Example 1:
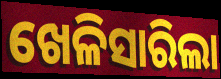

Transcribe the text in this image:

ଖେଳିସାରିଲା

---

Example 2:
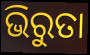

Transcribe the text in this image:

ଭିରୁତା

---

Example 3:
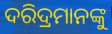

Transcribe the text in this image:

ଦରିଦ୍ରମାନଙ୍କୁ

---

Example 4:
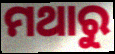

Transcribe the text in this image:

ମଥାରୁ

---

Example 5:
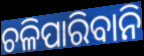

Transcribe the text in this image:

ଚଳିପାରିବାନି